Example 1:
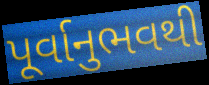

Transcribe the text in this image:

પૂર્વાનુભવથી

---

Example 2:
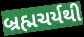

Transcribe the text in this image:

બ્રહ્મચર્યથી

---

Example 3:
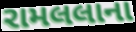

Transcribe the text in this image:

રામલલાના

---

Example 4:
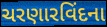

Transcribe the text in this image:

ચરણારવિંદના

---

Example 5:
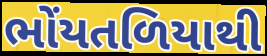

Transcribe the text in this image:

ભોંયતળિયાથી